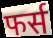
फर्स